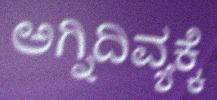
ಅಗ್ನಿದಿವ್ಯಕ್ಕೆ